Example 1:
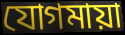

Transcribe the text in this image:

যোগমায়া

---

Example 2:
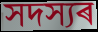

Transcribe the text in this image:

সদস্যৰ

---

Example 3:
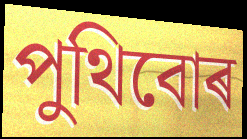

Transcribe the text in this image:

পুথিবোৰ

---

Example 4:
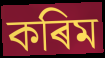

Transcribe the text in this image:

কৰিম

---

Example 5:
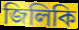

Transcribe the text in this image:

জিলিকি